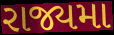
રાજ્યમા